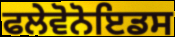
ਫਲੇਵੋਨੋਇਡਸ